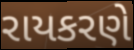
રાયકરણે